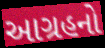
આગ્રહનો